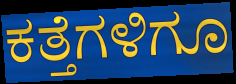
ಕತ್ತೆಗಳಿಗೂ